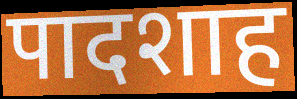
पादशाह